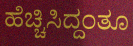
ಹೆಚ್ಚಿಸಿದ್ದಂತೂ